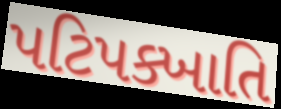
પટિપક્ખાતિ